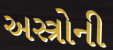
અસ્ત્રોની